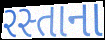
રસ્તાના